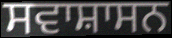
ਸਵਾਸ਼ਾਸਨ